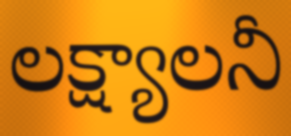
లక్ష్యాలనీ